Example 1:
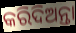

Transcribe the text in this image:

କରିଦିଅନ୍ତା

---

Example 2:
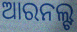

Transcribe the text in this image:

ଆରନଲ୍ଟ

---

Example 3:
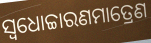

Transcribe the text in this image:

ସ୍ଵଧୋଚ୍ଚାରଣମାତ୍ରେଣ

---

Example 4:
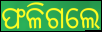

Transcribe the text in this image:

ଫଳିଗଲେ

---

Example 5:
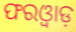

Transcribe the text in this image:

ଫରଓ୍ୱାଡ଼